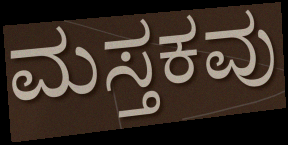
ಮಸ್ತಕವು